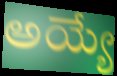
అయ్యే